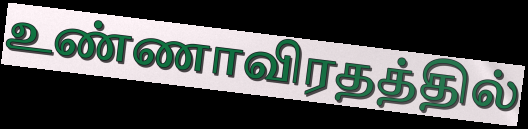
உண்ணாவிரதத்தில்